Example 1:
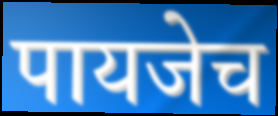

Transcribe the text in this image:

पायजेच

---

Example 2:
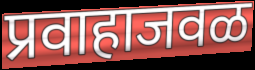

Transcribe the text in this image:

प्रवाहाजवळ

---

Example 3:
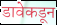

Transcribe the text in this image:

डावेकडून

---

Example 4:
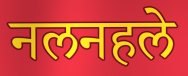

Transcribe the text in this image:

नलनहले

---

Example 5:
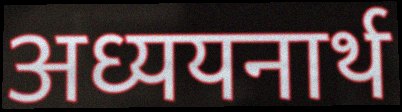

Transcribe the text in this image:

अध्ययनार्थ